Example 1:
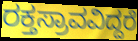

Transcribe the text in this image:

ರಕ್ತಸ್ರಾವವಿದ್ದರೆ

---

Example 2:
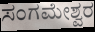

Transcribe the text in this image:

ಸಂಗಮೇಶ್ವರ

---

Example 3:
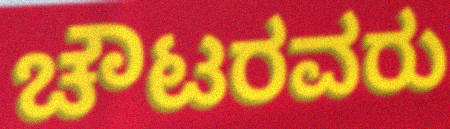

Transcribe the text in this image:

ಚೌಟರವರು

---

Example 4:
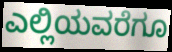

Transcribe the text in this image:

ಎಲ್ಲಿಯವರೆಗೂ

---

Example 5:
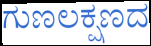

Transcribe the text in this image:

ಗುಣಲಕ್ಷಣದ